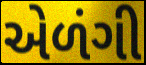
એળંગી